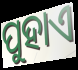
ପୁହାଏ